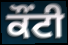
ਕੌਂਟੀ